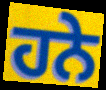
ਹਨੇ